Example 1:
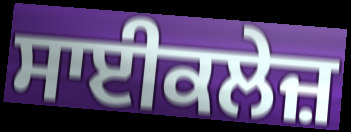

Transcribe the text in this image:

ਸਾਈਕਲੇਜ਼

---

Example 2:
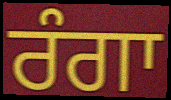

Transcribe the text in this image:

ਰੰਗਾ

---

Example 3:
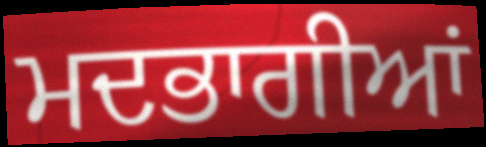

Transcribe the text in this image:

ਮਦਭਾਗੀਆਂ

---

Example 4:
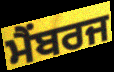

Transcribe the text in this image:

ਮੈਂਬਰਜ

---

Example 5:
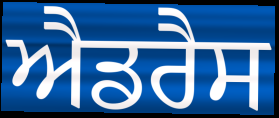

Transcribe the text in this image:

ਐਡਰੈਸ